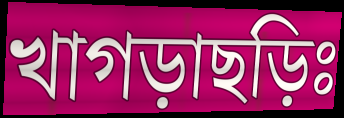
খাগড়াছড়িঃ